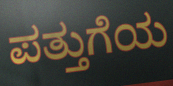
ಪತ್ತುಗೆಯ